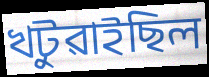
খটুৱাইছিল